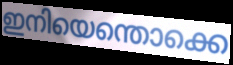
ഇനിയെന്തൊക്കെ